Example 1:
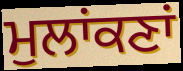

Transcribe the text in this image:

ਮੁਲਾਂਕਣਾਂ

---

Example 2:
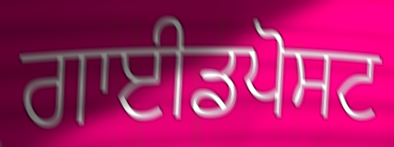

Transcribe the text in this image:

ਗਾਈਡਪੋਸਟ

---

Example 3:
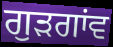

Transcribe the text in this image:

ਗੁਡ਼ਗਾਂਵ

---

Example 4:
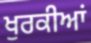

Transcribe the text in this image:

ਖੁਰਕੀਆਂ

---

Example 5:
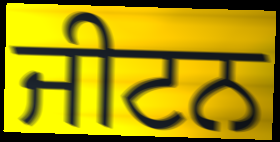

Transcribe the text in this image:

ਜੀਟਨ